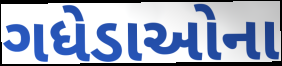
ગધેડાઓના